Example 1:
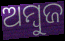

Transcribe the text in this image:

ଅମ୍ୱୁଜ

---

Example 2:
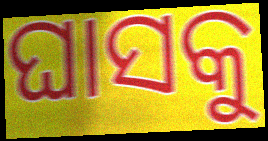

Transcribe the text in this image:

ଘାସକୁ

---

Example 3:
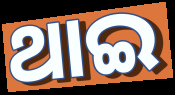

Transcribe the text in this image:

ଥାଇ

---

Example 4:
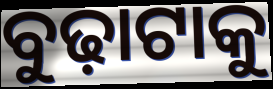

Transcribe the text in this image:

ବୁଢ଼ାଟାକୁ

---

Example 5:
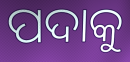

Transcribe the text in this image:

ପଦାକୁ